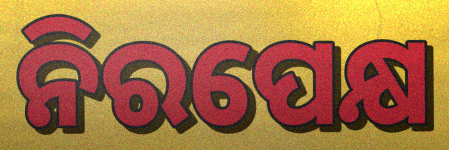
ନିରପେକ୍ଷ